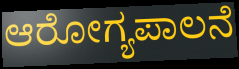
ಆರೋಗ್ಯಪಾಲನೆ